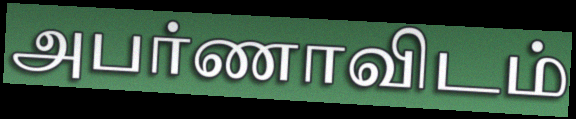
அபர்ணாவிடம்